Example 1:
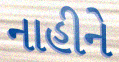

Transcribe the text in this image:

નાહીને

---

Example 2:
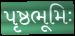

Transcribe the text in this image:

પૃષ્ઠભૂમિઃ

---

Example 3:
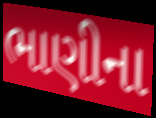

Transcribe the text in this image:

ભાણીના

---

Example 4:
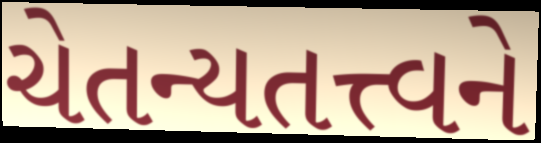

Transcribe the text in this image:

ચેતન્યતત્ત્વને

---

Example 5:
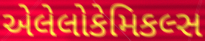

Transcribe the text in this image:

એલેલોકેમિકલ્સ